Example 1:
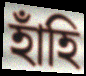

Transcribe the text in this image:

হাঁহি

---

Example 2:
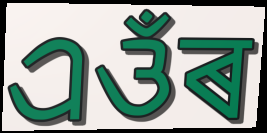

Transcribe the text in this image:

এওঁৰ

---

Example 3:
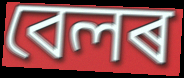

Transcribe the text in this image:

বেলৰ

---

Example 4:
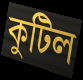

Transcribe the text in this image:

কুটিল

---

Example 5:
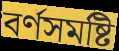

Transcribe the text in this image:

বৰ্ণসমষ্টি